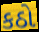
કઠો